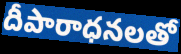
దీపారాధనలతో